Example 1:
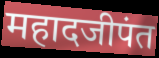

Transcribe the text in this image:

महादजीपंत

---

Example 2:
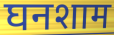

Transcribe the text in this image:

घनशाम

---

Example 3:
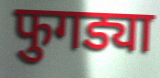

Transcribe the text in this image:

फुगड्या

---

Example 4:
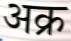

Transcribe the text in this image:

अक्र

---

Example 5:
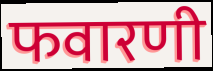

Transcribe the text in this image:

फवारणी